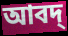
আবদ্